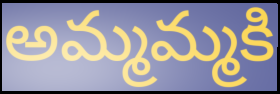
అమ్మమ్మకి